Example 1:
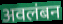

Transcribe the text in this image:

अवलंबन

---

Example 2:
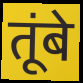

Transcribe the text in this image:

तूंबे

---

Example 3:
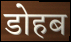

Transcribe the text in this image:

डोहब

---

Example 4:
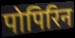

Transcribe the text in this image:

पोपिरिन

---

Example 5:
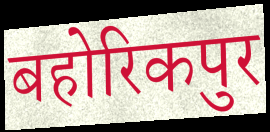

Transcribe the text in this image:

बहोरिकपुर